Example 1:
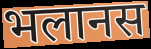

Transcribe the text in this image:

भलानस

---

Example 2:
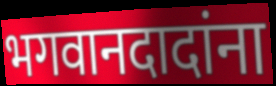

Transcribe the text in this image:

भगवानदादांना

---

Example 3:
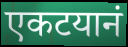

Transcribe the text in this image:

एकटयानं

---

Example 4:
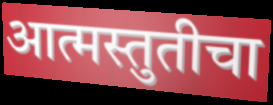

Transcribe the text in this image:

आत्मस्तुतीचा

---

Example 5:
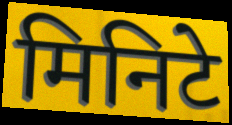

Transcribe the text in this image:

मिनिटे